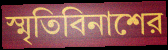
স্মৃতিবিনাশের